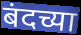
बंदच्या